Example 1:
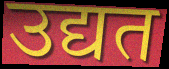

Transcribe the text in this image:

उद्यत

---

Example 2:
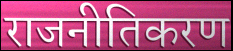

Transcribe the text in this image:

राजनीतिकरण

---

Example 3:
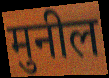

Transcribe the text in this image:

मुनील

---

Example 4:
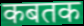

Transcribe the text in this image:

कबतक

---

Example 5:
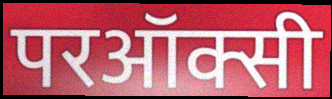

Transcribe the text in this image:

परऑक्सी